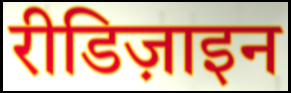
रीडिज़ाइन